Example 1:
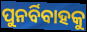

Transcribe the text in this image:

ପୁନର୍ବିବାହକୁ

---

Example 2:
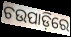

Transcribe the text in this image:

ଚଉପାଡ଼ିରେ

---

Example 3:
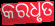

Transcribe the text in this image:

କରଧୃତ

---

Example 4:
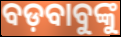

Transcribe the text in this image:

ବଡ଼ବାବୁଙ୍କୁ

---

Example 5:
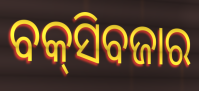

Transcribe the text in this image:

ବକ୍‍ସିବଜାର